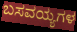
ಬಸವಯ್ಯಗಳ